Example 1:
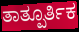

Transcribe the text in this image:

ತಾತ್ಪೂರ್ತಿಕ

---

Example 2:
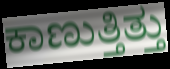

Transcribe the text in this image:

ಕಾಣುತ್ತಿತ್ತು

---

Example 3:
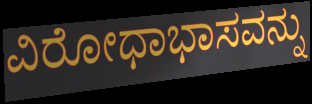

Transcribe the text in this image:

ವಿರೋಧಾಭಾಸವನ್ನು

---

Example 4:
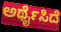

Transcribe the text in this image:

ಅರ್ಥೈಸಿದೆ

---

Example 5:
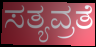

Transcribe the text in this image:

ಸತ್ಯವ್ರತೆ